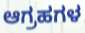
ಆಗ್ರಹಗಳ